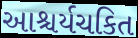
આશ્ચર્યચકિત